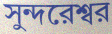
সুন্দরেশ্বর